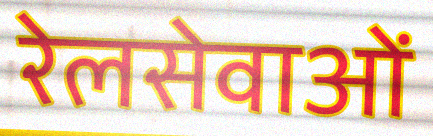
रेलसेवाओं